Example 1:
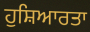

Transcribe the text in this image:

ਹੁਸ਼ਿਆਰਤਾ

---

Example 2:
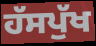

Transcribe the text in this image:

ਹੱਸਪੁੱਖ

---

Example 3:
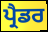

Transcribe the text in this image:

ਪ੍ਰੈਡਰ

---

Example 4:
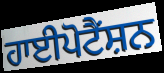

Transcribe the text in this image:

ਹਾਈਪੋਟੈਂਸ਼ਨ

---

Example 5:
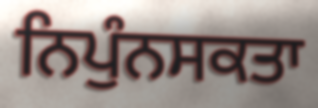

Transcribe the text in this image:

ਨਿਪੁੰਨਸਕਤਾ